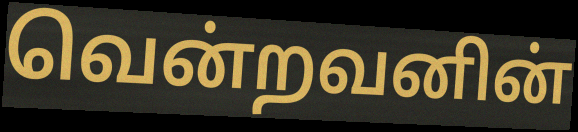
வென்றவனின்